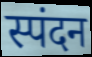
स्पंदन